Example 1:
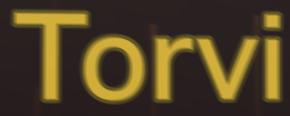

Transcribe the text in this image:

Torvi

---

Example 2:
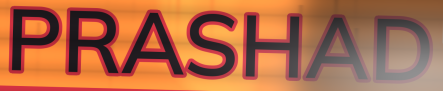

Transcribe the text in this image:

PRASHAD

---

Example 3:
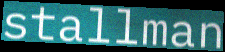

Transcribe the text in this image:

stallman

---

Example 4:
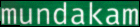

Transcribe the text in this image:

mundakam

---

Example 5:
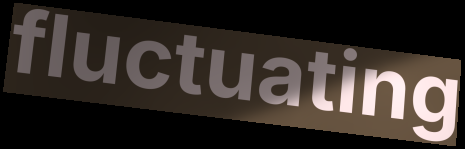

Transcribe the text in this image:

fluctuating